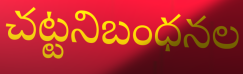
చట్టనిబంధనల